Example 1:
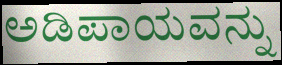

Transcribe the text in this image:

ಅಡಿಪಾಯವನ್ನು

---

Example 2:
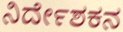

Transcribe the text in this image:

ನಿರ್ದೇಶಕನ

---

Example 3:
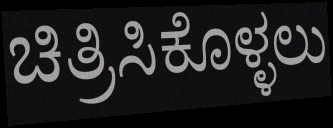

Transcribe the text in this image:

ಚಿತ್ರಿಸಿಕೊಳ್ಳಲು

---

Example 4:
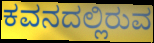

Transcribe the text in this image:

ಕವನದಲ್ಲಿರುವ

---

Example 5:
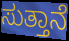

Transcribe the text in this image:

ಸುತ್ತಾನೆ